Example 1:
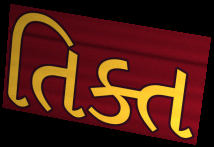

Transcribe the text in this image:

તિક્ત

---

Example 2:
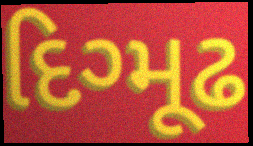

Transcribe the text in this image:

દિગ્મૂઢ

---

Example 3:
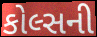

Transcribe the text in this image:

કોલ્સની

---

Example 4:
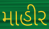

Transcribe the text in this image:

માહીર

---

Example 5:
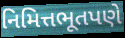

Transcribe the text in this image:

નિમિત્તભૂતપણે